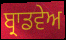
ਬ੍ਰਾਡਵੇਅ